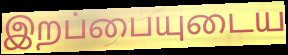
இறப்பையுடைய